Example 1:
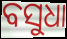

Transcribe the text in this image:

ବସୁଧା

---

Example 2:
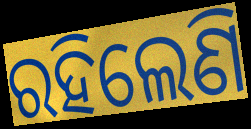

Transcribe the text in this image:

ରହିଲେଣି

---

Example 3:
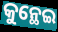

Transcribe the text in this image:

କୁନ୍ଥେଇ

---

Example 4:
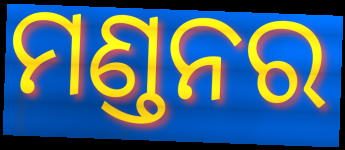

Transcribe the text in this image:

ମଣ୍ଡନର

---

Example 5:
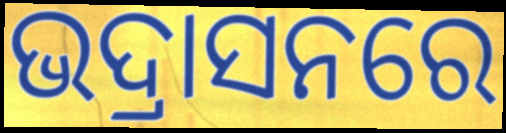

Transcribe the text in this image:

ଭଦ୍ରାସନରେ